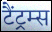
टैंट्रम्स